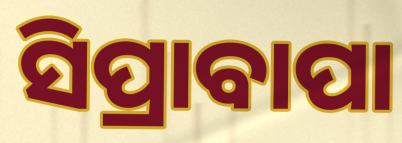
ସିପ୍ରାବାପା